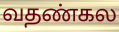
வதண்கல